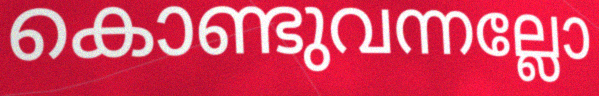
കൊണ്ടുവന്നല്ലോ